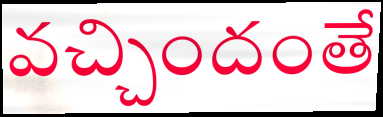
వచ్చిందంతే